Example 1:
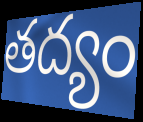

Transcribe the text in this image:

తద్యం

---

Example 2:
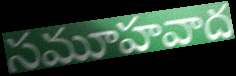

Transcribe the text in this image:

సమూహవాద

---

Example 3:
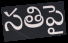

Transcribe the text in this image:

సతిపై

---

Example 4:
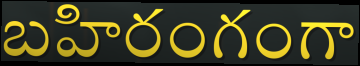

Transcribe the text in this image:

బహిరంగంగా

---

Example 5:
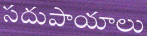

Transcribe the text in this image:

సదుపాయాలు